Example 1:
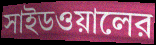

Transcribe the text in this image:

সাইডওয়ালের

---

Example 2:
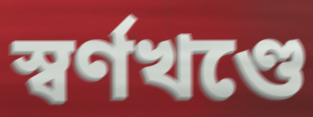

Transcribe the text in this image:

স্বর্ণখণ্ডে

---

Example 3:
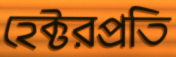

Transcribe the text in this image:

হেক্টরপ্রতি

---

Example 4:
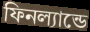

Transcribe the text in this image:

ফিনল্যান্ডে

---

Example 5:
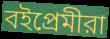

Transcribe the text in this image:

বইপ্রেমীরা